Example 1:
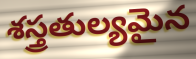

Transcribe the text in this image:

శస్త్రతుల్యమైన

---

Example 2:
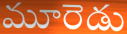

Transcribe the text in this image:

మూరెడు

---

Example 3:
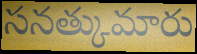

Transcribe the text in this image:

సనత్కుమారు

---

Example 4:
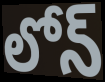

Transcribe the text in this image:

లోన్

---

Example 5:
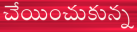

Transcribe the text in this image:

చేయించుకున్న